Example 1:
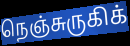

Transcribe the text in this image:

நெஞ்சுருகிக்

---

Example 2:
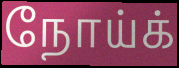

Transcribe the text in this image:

நோய்க்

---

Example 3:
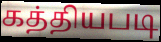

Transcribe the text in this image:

கத்தியபடி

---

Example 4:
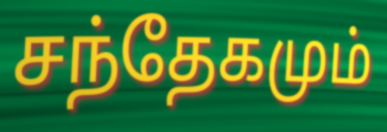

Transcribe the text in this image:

சந்தேகமும்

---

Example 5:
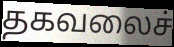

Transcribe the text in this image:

தகவலைச்